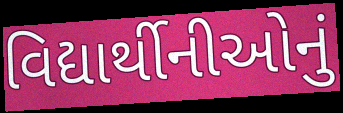
વિદ્યાર્થીનીઓનું